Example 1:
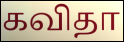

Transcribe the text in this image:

கவிதா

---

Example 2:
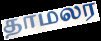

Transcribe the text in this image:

தாமலர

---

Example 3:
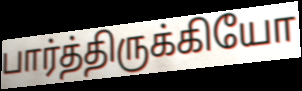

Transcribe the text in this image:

பார்த்திருக்கியோ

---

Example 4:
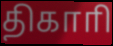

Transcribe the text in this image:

திகாரி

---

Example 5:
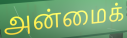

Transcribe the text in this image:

அன்மைக்